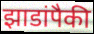
झाडांपैकी